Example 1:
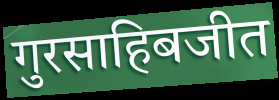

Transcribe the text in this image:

गुरसाहिबजीत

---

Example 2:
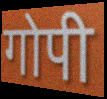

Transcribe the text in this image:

गोपी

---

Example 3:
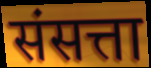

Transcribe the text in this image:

संसत्ता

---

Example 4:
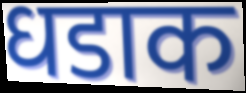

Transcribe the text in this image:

धडाक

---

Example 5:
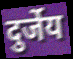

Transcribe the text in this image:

दुर्जेय